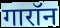
गारॉन